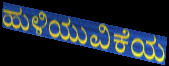
ಹುಳಿಯುವಿಕೆಯ